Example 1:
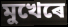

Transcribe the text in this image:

মুখেৰে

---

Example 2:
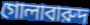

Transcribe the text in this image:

গোলাবাৰুদ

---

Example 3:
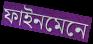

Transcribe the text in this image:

ফাইনমেনে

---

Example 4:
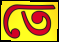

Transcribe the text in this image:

তে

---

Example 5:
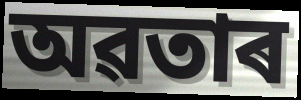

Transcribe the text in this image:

অৱতাৰ